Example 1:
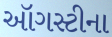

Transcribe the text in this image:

ઑગસ્ટીના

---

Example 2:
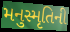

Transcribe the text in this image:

મનુસ્મૃતિની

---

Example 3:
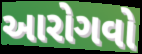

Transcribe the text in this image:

આરોગવો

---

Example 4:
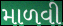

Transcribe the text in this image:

માળવી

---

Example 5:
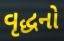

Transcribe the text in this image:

વૃદ્ધનો